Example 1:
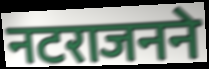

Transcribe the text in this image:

नटराजनने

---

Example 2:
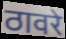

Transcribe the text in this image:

ठावरे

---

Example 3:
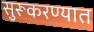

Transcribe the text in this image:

सुरूकरण्यात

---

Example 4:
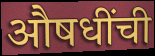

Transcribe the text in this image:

औषधींची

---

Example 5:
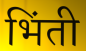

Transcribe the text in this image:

भिंती